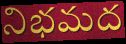
నిభమద